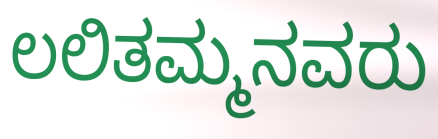
ಲಲಿತಮ್ಮನವರು